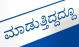
ಮಾಡುತ್ತಿದ್ದದ್ದೂ